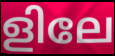
ളിലേ